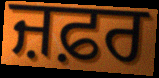
ਜ਼ਫ਼ਰ